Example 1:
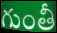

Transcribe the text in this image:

గుంతీ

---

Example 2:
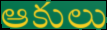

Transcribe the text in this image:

ఆకులు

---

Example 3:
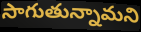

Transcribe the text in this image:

సాగుతున్నామని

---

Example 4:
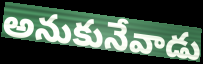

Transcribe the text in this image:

అనుకునేవాడు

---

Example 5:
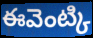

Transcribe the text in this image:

ఈవెంట్కి